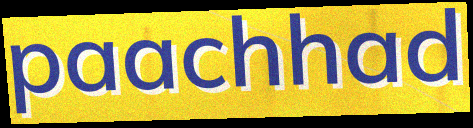
paachhad